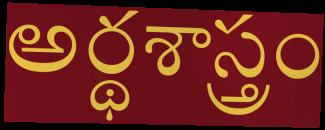
అర్థశాస్త్రం